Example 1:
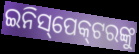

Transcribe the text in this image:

ଇନିସ୍‌ପେକ୍‍ଟରଙ୍କୁ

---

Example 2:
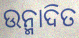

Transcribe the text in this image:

ଉନ୍ମାଦିତ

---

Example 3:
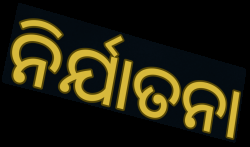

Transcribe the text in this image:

ନିର୍ଯାତନା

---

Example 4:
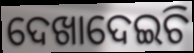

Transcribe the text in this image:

ଦେଖାଦେଇଚି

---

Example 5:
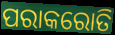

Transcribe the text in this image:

ପରାକରୋତି